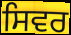
ਸਿਵਰ